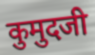
कुमुदजी